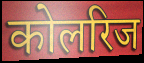
कोलरिज